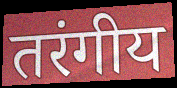
तरंगीय